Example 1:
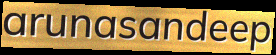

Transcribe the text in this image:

arunasandeep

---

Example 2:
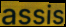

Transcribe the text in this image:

assis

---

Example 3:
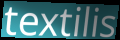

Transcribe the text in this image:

textilis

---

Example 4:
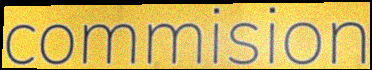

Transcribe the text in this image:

commision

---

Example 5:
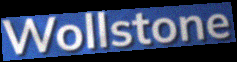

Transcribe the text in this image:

Wollstone